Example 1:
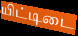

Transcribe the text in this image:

யிட்டிடை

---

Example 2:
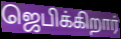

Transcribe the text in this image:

ஜெபிக்கிறார்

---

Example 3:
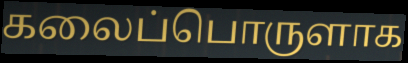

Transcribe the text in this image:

கலைப்பொருளாக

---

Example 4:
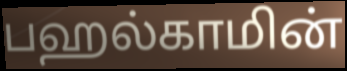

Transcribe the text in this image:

பஹல்காமின்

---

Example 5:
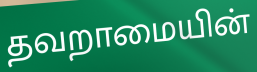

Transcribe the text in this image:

தவறாமையின்